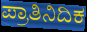
ಪ್ರಾತಿನಿದಿಕ